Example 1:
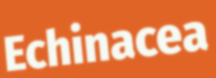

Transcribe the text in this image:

Echinacea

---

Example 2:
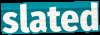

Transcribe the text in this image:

slated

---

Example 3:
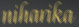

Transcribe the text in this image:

niharika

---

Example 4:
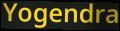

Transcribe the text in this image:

Yogendra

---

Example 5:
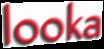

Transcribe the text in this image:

looka